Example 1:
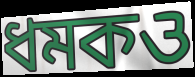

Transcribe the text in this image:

ধমকও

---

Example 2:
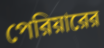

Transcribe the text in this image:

পেরিয়ারের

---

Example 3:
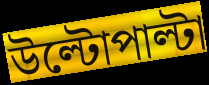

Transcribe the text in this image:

উল্টোপাল্টা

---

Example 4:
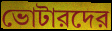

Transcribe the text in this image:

ভোটারদের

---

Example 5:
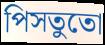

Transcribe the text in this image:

পিসতুতো